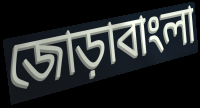
জোড়াবাংলা